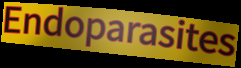
Endoparasites